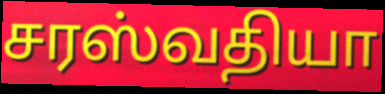
சரஸ்வதியா